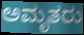
ಅಮೃತರು